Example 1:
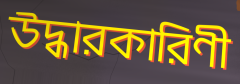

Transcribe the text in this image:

উদ্ধারকারিণী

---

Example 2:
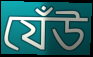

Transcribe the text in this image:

যেঁউ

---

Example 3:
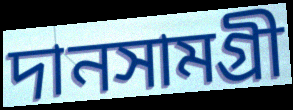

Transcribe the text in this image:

দানসামগ্রী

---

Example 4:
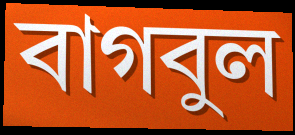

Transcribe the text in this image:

বাগবুল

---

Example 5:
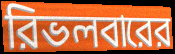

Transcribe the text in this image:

রিভলবারের